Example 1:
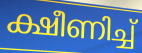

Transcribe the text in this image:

ക്ഷീണിച്ച്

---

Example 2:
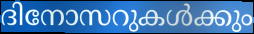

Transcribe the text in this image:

ദിനോസറുകൾക്കും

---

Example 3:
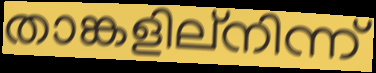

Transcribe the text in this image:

താങ്കളില്നിന്ന്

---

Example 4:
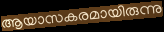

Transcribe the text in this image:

ആയാസകരമായിരുന്നു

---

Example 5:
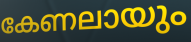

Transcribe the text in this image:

കേണലായും